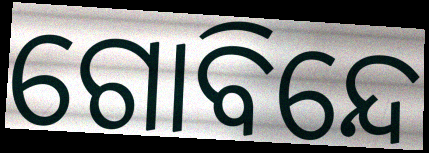
ଗୋବିନ୍ଦେ